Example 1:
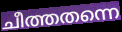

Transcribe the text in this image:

ചീത്തതന്നെ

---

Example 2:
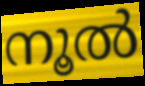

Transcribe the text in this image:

നൂൽ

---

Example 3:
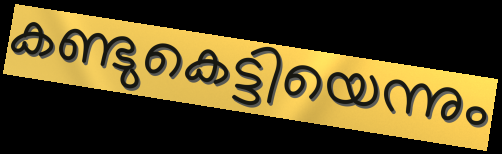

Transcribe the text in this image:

കണ്ടുകെട്ടിയെന്നും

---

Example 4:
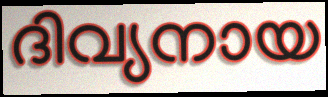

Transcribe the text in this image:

ദിവ്യനായ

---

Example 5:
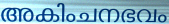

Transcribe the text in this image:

അകിംചനഭവം